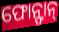
ଫୋନ୍ଫାନ୍